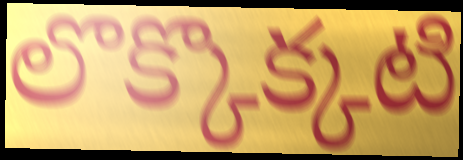
లొక్కొక్కటి